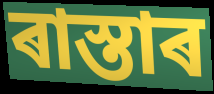
ৰাস্তাৰ